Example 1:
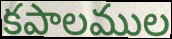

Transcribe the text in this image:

కపాలముల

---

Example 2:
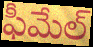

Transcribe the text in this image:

ఫీమేల్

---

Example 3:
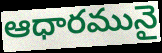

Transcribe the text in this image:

ఆధారమునై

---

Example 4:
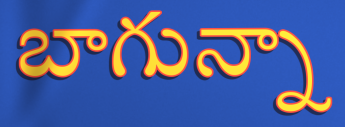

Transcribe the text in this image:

బాగున్నా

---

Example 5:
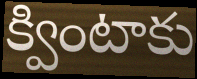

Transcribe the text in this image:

క్వింటాకు